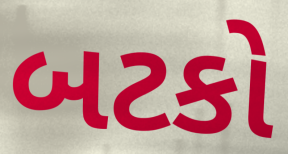
બટકો